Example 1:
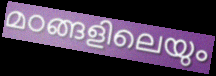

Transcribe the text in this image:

മഠങ്ങളിലെയും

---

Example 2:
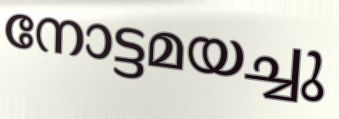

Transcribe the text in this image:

നോട്ടമയച്ചു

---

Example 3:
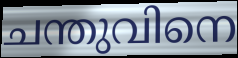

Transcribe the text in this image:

ചന്തുവിനെ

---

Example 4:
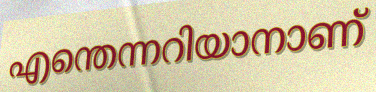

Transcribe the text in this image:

എന്തെന്നറിയാനാണ്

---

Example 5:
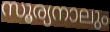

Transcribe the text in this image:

സൂര്യനാലും